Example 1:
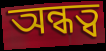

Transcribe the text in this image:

অন্ধত্ব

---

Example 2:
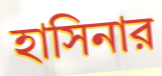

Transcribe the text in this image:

হাসিনার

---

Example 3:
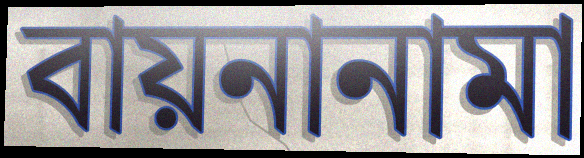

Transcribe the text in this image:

বায়নানামা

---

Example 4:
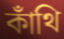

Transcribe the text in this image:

কাঁথি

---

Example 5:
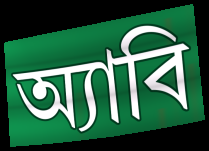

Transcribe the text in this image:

অ্যাবি